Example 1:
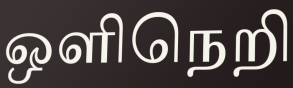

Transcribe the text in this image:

ஒளிநெறி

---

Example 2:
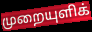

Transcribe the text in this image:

முறையுளிக்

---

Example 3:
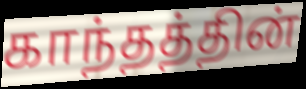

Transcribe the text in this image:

காந்தத்தின்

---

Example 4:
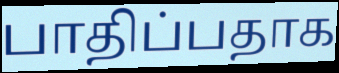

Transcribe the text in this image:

பாதிப்பதாக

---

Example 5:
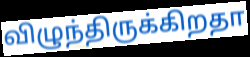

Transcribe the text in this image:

விழுந்திருக்கிறதா